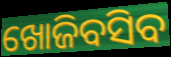
ଖୋଜିବସିବ